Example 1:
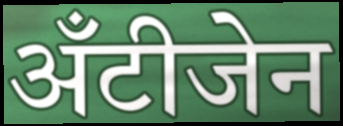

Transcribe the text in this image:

अँटीजेन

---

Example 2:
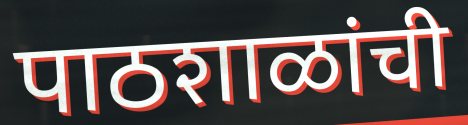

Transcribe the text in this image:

पाठशाळांची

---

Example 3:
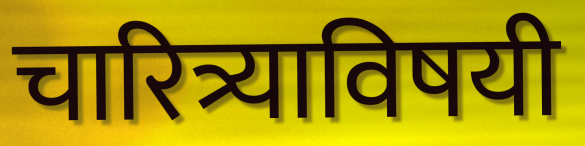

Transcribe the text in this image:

चारित्र्याविषयी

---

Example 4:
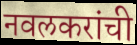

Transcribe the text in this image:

नवलकरांची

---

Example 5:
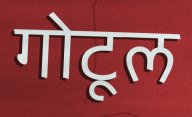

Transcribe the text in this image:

गोटूल